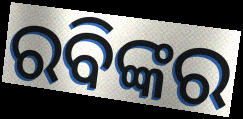
ରବିଙ୍କର